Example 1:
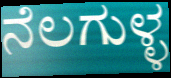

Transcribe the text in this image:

ನೆಲಗುಳ್ಳ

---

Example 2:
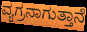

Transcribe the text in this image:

ವ್ಯಗ್ರನಾಗುತ್ತಾನೆ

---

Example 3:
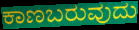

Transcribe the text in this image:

ಕಾಣಬರುವುದು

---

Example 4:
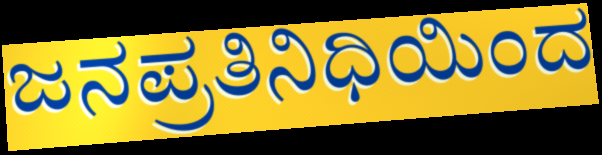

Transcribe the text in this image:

ಜನಪ್ರತಿನಿಧಿಯಿಂದ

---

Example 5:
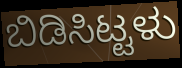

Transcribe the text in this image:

ಬಿಡಿಸಿಟ್ಟಳು